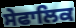
ਸੇਫਾਲਿਕ